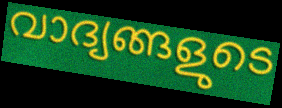
വാദ്യങ്ങളുടെ